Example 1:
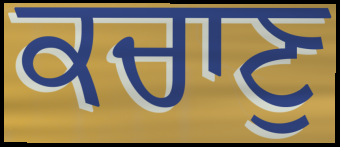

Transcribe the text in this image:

ਕਚਾਣੁ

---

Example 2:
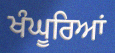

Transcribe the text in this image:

ਖੰਘੂਰਿਆਂ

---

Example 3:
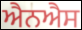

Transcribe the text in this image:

ਐਨਐਸ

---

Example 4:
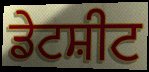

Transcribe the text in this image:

ਡੇਟਸ਼ੀਟ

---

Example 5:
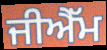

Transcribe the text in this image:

ਜੀਐੱਮ